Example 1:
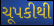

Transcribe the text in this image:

ચૂપકીથી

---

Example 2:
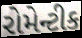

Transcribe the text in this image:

રોમેન્ટીક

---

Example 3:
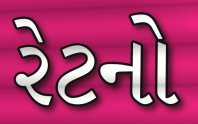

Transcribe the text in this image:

રેટનો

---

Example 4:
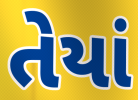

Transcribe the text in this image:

તેયાં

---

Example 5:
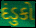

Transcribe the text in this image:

દંડુકો